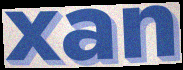
xan